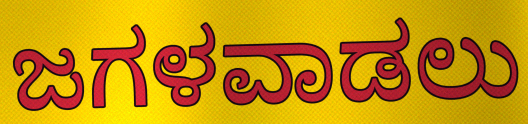
ಜಗಳವಾಡಲು